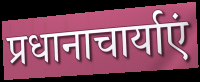
प्रधानाचार्याएं